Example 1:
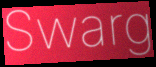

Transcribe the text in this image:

Swarg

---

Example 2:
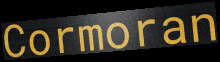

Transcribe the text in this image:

Cormoran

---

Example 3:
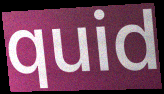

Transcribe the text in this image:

quid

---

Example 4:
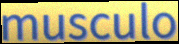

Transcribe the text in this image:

musculo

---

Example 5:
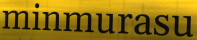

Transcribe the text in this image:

minmurasu